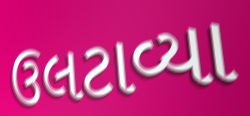
ઉલટાવ્યા